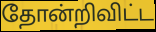
தோன்றிவிட்ட